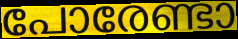
പോരേണ്ടാ